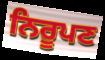
ਨਿਰੂਪਣ